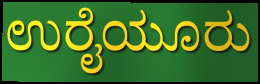
ಉರೈಯೂರು